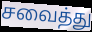
சவைத்து